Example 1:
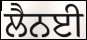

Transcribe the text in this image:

ਲੈਨਈ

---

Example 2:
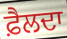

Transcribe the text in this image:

ਫ਼ੈਲਦਾ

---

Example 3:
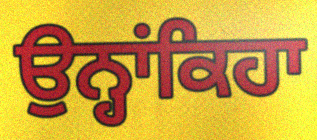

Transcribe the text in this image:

ਉਨ੍ਹਾਂਕਿਹਾ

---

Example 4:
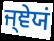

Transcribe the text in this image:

ਜ੍ਞੇਯਂ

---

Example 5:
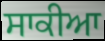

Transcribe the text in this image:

ਸਾਕੀਆ